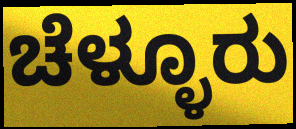
ಚೆಳ್ಳೂರು